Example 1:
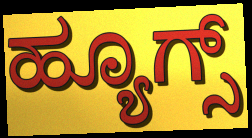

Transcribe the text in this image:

ಹ್ಯೂಗ್ಸ್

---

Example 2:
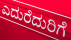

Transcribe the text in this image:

ಎದುರೆದುರಿಗೆ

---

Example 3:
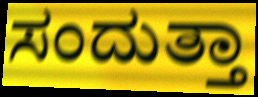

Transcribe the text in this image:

ಸಂದುತ್ತಾ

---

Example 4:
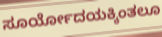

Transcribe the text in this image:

ಸೂರ್ಯೋದಯಕ್ಕಿಂತಲೂ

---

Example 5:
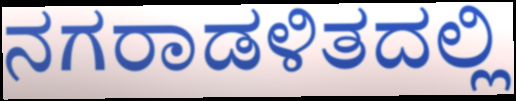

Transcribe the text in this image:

ನಗರಾಡಳಿತದಲ್ಲಿ